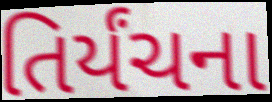
તિર્યંચના